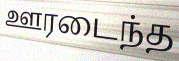
ஊரடைந்த